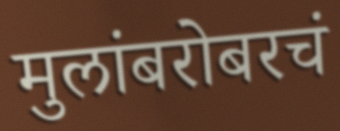
मुलांबरोबरचं